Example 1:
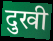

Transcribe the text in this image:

दुखी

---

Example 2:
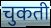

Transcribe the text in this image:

चुकती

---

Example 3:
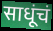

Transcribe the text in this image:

साधूंचं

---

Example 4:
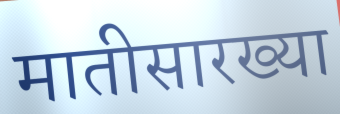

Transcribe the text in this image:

मातीसारख्या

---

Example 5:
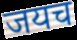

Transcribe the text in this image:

जयच